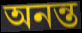
অনন্ত